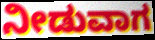
ನೀಡುವಾಗ